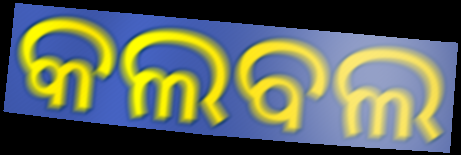
କଲବଲ